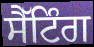
ਸੈੱਟਿੰਗ